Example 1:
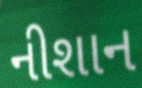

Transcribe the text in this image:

નીશાન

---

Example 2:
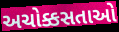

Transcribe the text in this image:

અચોક્કસતાઓ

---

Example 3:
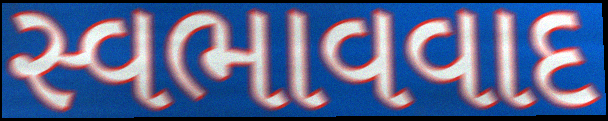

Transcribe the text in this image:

સ્વભાવવાદ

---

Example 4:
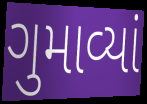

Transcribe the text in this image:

ગુમાવ્યાં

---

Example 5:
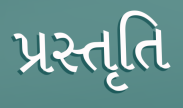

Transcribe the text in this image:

પ્રસ્તૃતિ